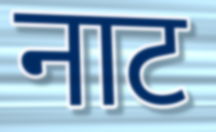
नाट